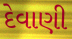
દેવાણી